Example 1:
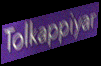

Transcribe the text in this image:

Tolkappiyar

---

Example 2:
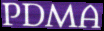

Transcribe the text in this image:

PDMA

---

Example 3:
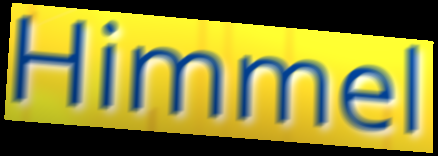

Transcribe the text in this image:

Himmel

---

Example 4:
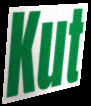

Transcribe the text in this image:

Kut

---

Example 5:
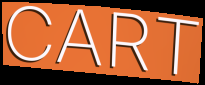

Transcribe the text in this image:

CART